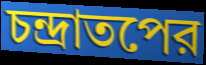
চন্দ্রাতপের